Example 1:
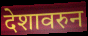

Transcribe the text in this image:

देशावरुन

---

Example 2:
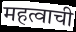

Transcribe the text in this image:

महत्वाची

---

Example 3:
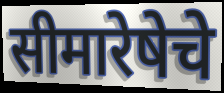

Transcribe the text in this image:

सीमारेषेचे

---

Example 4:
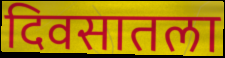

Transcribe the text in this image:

दिवसातला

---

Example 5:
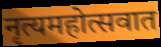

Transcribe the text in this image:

नृत्यमहोत्सवात